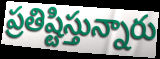
ప్రతిష్టిస్తున్నారు